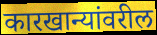
कारखान्यांवरील